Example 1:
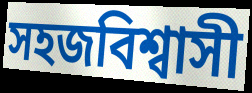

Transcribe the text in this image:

সহজবিশ্বাসী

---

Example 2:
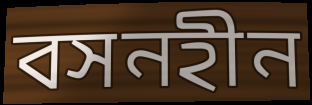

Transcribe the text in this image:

বসনহীন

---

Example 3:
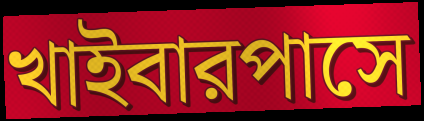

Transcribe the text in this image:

খাইবারপাসে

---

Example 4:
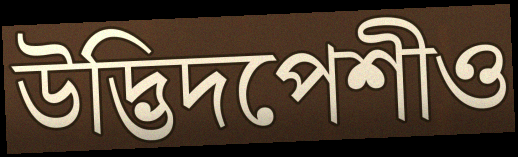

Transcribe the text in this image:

উদ্ভিদপেশীও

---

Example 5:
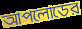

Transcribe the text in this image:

আপলোডের